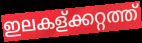
ഇലകള്ക്കറ്റത്ത്